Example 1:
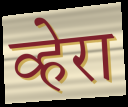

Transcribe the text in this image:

व्हेरा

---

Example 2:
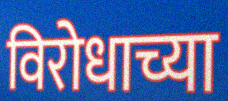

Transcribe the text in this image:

विरोधाच्या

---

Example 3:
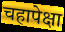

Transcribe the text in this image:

चहापेक्षा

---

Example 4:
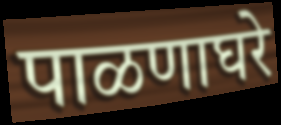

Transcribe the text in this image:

पाळणाघरे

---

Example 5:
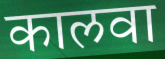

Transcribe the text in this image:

कालवा